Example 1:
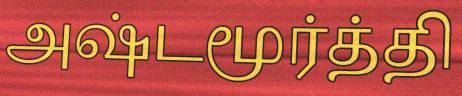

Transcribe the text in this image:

அஷ்டமூர்த்தி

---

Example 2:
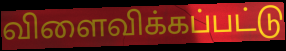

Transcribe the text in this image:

விளைவிக்கப்பட்டு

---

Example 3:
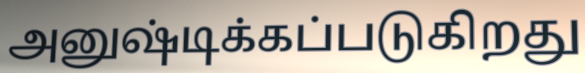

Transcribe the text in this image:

அனுஷ்டிக்கப்படுகிறது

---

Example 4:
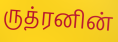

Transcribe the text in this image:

ருத்ரனின்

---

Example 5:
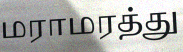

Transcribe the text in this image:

மராமரத்து